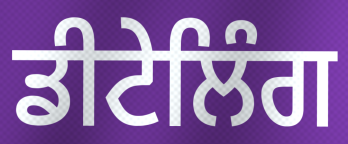
ਡੀਟੇਲਿੰਗ